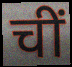
चीं